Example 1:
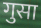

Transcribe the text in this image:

गुसा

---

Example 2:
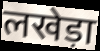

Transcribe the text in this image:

लखेड़ा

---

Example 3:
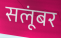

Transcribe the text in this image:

सलूंबर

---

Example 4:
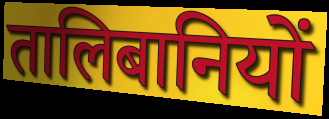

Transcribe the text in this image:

तालिबानियों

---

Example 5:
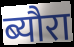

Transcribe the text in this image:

ब्‍यौरा